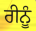
ਰੀਨੂੰ